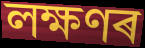
লক্ষণৰ